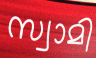
സ്വാമി